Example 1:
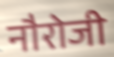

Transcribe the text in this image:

नौरोजी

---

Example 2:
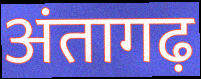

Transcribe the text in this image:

अंतागढ़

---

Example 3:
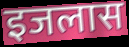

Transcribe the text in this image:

इजलास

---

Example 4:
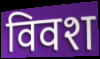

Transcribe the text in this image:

विवश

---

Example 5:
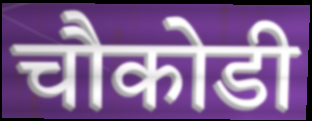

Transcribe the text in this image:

चौकोडी